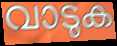
വാടുക